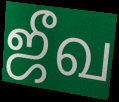
ஜீவ